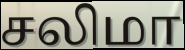
சலிமா